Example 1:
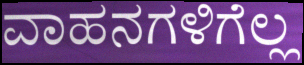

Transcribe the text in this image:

ವಾಹನಗಳಿಗೆಲ್ಲ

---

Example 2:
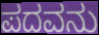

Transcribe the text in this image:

ಪದವನು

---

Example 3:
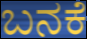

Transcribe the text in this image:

ಬನಕೆ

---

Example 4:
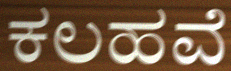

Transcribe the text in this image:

ಕಲಹವೆ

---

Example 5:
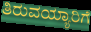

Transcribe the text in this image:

ತಿರುವಯ್ಯಾರಿಗೆ